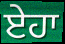
ਏਹਾ